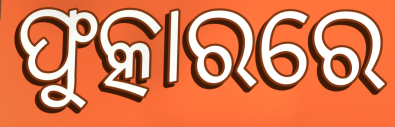
ଫୁତ୍କାରରେ